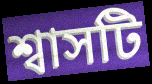
শ্বাসটি